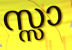
സ്സാ